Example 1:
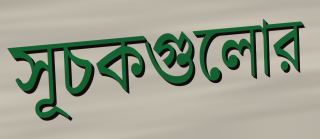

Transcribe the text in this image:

সূচকগুলোর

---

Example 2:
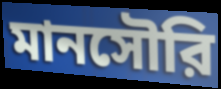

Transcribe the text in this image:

মানসৌরি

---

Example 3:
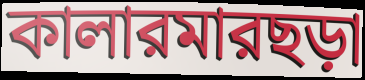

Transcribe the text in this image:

কালারমারছড়া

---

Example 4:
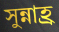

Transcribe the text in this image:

সুন্নাহ্র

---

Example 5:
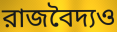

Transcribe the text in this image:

রাজবৈদ্যও